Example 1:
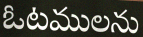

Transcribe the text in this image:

ఓటములను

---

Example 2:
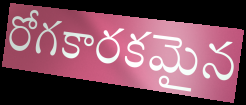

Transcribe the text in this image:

రోగకారకమైన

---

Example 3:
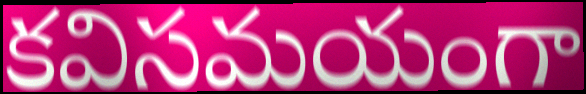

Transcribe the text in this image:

కవిసమయంగా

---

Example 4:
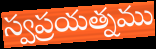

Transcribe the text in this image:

స్వప్రయత్నము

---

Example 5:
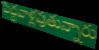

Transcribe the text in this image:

పెద్దవాళ్లవుతున్నారు